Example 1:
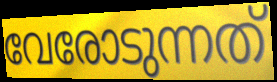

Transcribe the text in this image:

വേരോടുന്നത്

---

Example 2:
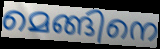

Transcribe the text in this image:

മെങ്ങിനെ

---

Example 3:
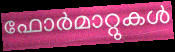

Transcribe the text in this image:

ഫോർമാറ്റുകൾ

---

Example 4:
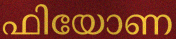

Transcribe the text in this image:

ഫിയോണ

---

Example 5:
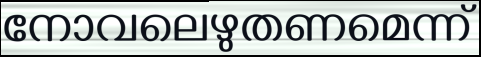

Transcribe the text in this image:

നോവലെഴുതണമെന്ന്